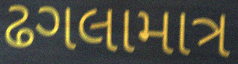
ઢગલામાત્ર